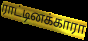
ராட்டினக்காரா